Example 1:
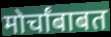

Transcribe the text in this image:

मोर्चांबाबत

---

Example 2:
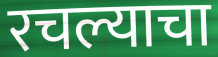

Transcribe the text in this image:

रचल्याचा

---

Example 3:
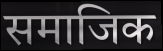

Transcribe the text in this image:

समाजिक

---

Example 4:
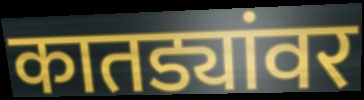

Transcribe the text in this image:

कातड्यांवर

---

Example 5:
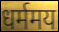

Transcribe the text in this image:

धर्ममय